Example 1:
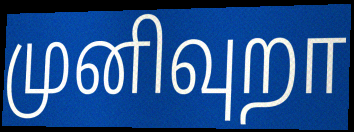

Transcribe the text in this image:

முனிவுறா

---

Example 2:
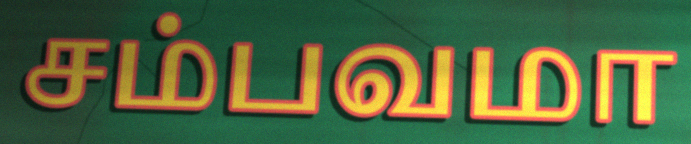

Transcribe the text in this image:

சம்பவமா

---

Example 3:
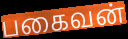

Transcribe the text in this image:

பகைவன்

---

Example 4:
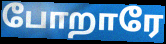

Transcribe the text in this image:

போறாரே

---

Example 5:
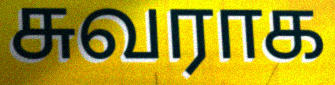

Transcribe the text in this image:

சுவராக